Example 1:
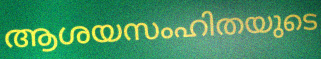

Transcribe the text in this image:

ആശയസംഹിതയുടെ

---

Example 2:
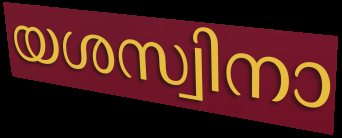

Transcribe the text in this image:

യശസ്വിനാ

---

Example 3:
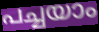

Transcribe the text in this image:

പച്ചയാം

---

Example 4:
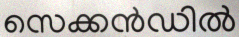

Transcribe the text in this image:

സെക്കൻഡിൽ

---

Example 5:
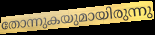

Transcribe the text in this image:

തോന്നുകയുമായിരുന്നു